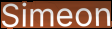
Simeon